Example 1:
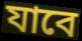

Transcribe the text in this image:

যাবে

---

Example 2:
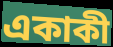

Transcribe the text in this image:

একাকী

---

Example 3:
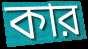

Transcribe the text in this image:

কার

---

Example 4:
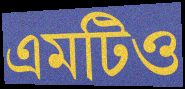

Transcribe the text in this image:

এমটিও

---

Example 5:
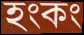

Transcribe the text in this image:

হংকং